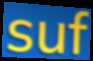
suf